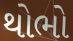
થોભો